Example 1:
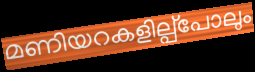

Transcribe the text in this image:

മണിയറകളില്പ്പോലും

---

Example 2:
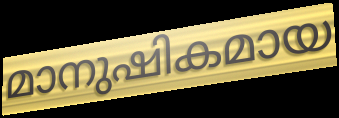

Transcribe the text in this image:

മാനുഷികമായ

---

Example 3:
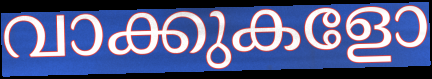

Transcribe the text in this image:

വാക്കുകളോ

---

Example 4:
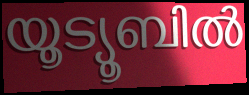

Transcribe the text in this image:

യൂട്യൂബിൽ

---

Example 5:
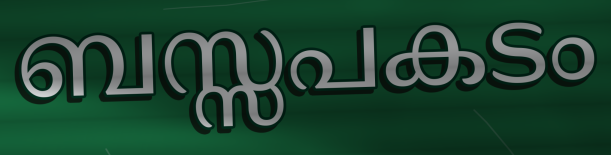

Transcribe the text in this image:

ബസ്സപകടം